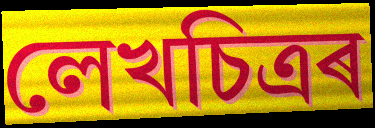
লেখচিত্ৰৰ